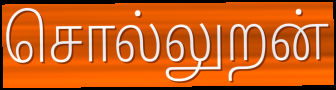
சொல்லுறன்